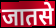
जातसे